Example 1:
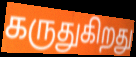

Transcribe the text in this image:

கருதுகிறது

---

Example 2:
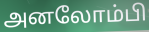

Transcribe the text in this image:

அனலோம்பி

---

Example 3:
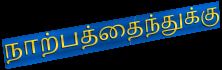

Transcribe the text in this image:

நாற்பத்தைந்துக்கு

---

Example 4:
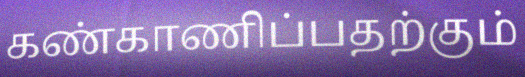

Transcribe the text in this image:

கண்காணிப்பதற்கும்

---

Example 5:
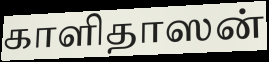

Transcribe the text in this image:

காளிதாஸன்